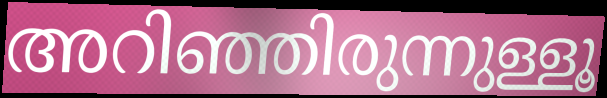
അറിഞ്ഞിരുന്നുള്ളൂ